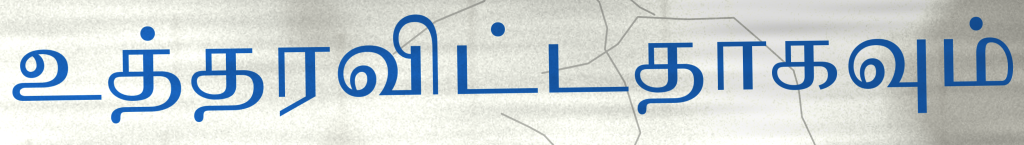
உத்தரவிட்டதாகவும்